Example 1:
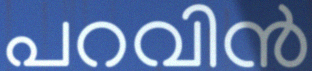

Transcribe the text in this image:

പറവിൻ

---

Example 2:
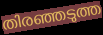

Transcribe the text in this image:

തിരഞ്ഞടുത്ത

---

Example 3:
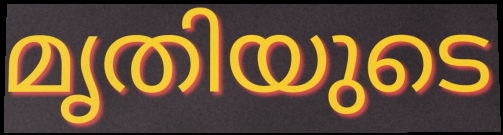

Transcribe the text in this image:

മൃതിയുടെ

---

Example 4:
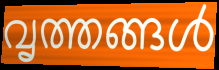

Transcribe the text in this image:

വൃത്തങ്ങൾ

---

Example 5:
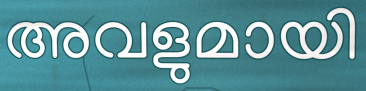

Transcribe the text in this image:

അവളുമായി